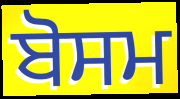
ਬੋਸਮ